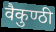
वैकुण्ठी